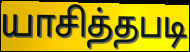
யாசித்தபடி